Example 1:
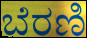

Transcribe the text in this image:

ಬೆರಣಿ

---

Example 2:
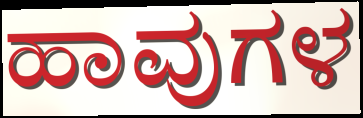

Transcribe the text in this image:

ಹಾವುಗಳ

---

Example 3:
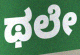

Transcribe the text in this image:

ಥಲೇ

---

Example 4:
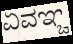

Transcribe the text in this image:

ಏವಞ್ಚ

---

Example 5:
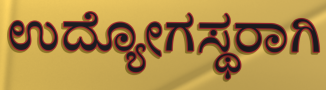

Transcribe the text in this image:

ಉದ್ಯೋಗಸ್ಥರಾಗಿ